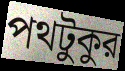
পথটুকুর